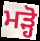
ਮੜ੍ਹੋ